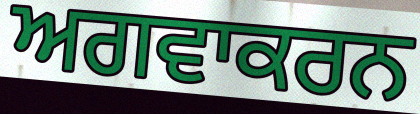
ਅਗਵਾਕਰਨ